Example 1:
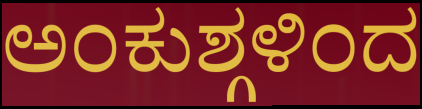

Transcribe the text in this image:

ಅಂಕುಶ್ಗಳಿಂದ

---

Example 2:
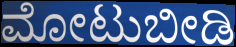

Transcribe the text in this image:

ಮೋಟುಬೀಡಿ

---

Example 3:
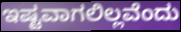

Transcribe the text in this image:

ಇಷ್ಟವಾಗಲಿಲ್ಲವೆಂದು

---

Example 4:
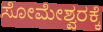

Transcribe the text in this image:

ಸೋಮೇಶ್ವರಕ್ಕೆ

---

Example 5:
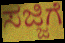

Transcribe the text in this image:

ಸಜ್ಜಿಗೆ